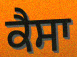
ਕੈਸਾ